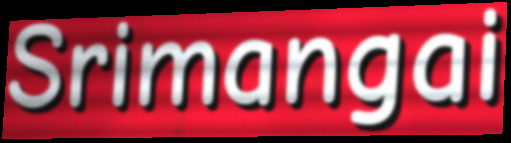
Srimangai